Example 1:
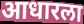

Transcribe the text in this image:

आधारला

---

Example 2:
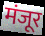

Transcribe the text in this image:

मंजूर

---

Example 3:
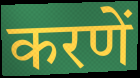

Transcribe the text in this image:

करणें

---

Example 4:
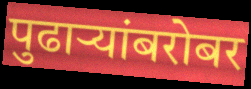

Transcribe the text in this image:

पुढाऱ्यांबरोबर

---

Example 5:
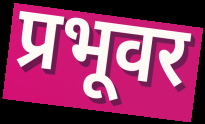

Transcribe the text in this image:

प्रभूवर